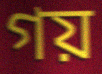
গয়